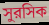
সুরসিক